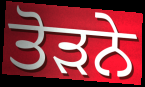
ਤੋੜਨੇ